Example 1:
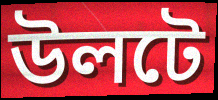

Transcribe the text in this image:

উলটে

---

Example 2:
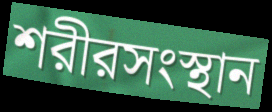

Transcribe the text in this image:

শরীরসংস্থান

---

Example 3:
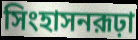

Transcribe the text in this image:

সিংহাসনরূঢ়া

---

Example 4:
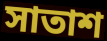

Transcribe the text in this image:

সাতাশ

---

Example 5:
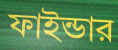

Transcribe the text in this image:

ফাইন্ডার